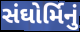
સંઘોર્મિનું